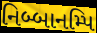
નિબ્બાનમ્પિ